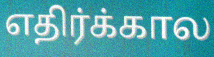
எதிர்க்கால